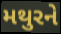
મથુરને